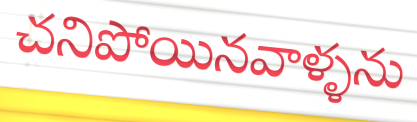
చనిపోయినవాళ్ళను